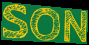
SON